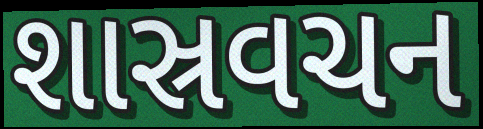
શાસ્રવચન